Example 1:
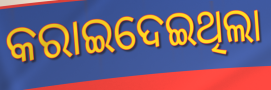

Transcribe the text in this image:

କରାଇଦେଇଥିଲା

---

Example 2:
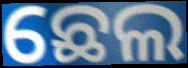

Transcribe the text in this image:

ଛେଲ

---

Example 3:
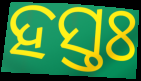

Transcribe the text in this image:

ହସ୍ତଃ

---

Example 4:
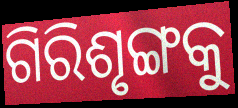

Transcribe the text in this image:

ଗିରିଶୃଙ୍ଗକୁ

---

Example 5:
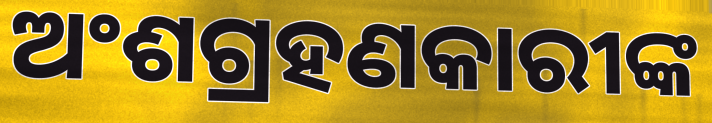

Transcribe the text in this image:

ଅଂଶଗ୍ରହଣକାରୀଙ୍କ